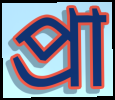
প্ৰা